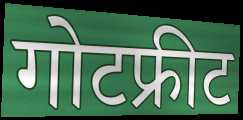
गोटफ्रीट